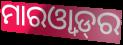
ମାରଓ୍ୱାଡ଼୍‌ର